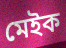
মেইক